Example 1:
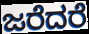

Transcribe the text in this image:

ಜರೆದರೆ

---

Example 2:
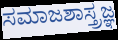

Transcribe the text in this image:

ಸಮಾಜಶಾಸ್ತ್ರಜ್ಞ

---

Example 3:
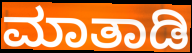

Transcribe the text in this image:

ಮಾತಾಡಿ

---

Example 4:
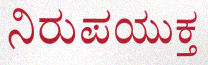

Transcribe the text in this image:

ನಿರುಪಯುಕ್ತ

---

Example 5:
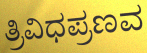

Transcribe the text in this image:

ತ್ರಿವಿಧಪ್ರಣವ